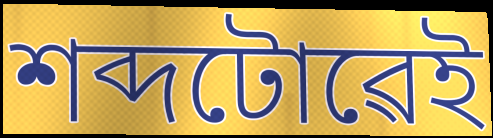
শব্দটোৱেই